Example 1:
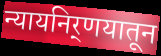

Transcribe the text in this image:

न्यायनिर्णयातून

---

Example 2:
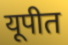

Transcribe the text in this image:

यूपीत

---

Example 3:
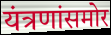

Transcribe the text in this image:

यंत्रणांसमोर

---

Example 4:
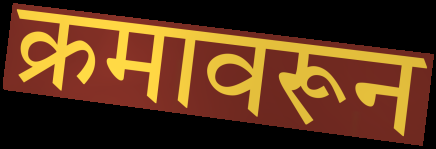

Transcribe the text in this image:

क्रमावरून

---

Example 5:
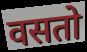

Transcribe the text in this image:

वसतो